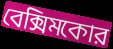
বেক্সিমকোর